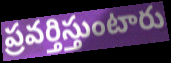
ప్రవర్తిస్తుంటారు